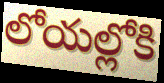
లోయల్లోకి